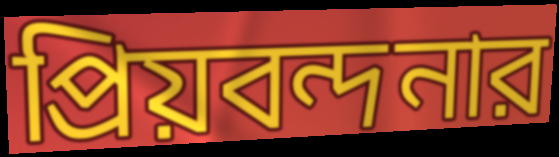
প্রিয়বন্দনার